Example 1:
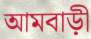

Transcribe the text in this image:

আমবাড়ী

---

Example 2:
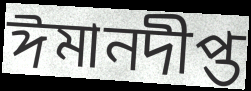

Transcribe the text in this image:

ঈমানদীপ্ত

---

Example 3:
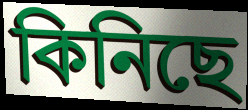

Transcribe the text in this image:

কিনিছে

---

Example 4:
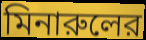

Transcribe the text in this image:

মিনারুলের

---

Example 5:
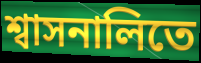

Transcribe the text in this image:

শ্বাসনালিতে